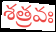
శత్రవః